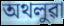
অথলুৱা